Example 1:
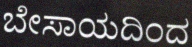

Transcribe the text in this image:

ಬೇಸಾಯದಿಂದ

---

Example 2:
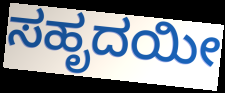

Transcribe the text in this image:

ಸಹೃದಯೀ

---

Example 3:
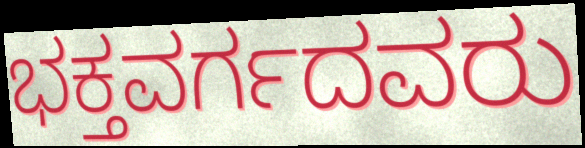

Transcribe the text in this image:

ಭಕ್ತವರ್ಗದವರು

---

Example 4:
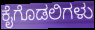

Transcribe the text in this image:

ಕೈಗೊಡಲಿಗಳು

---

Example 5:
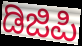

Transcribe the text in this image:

ಡಿಜಿಪಿ